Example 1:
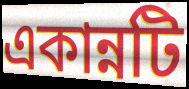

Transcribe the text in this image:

একান্নটি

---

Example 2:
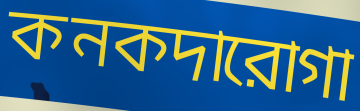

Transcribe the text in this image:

কনকদারোগা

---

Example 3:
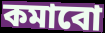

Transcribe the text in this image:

কমাবো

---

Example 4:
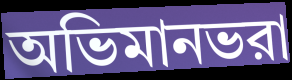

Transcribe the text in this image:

অভিমানভরা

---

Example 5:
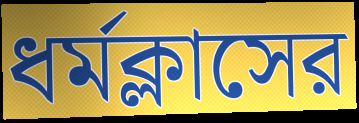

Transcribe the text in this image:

ধর্মক্লাসের